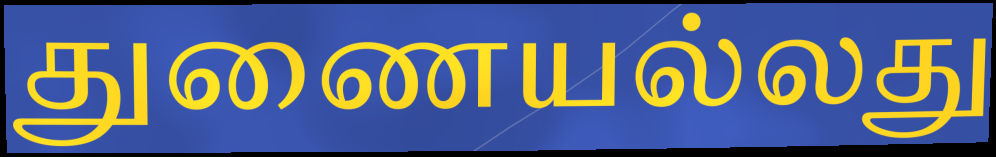
துணையல்லது